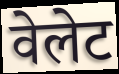
वेलेट